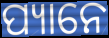
ପ୍ୟାନେ